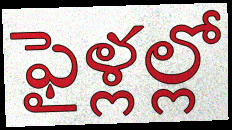
ఫైళ్లల్లో